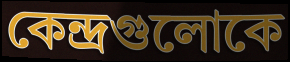
কেন্দ্রগুলোকে